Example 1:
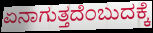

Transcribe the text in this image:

ಏನಾಗುತ್ತದೆಂಬುದಕ್ಕೆ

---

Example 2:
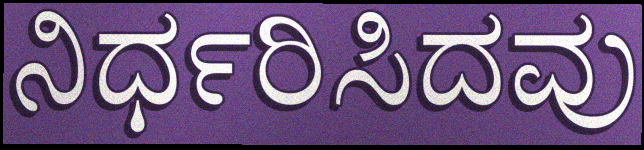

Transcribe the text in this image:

ನಿರ್ಧರಿಸಿದವು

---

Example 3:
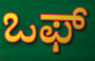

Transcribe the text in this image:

ಒಫ್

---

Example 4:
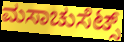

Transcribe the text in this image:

ಮಸಾಚುಸೆಟ್ಸ್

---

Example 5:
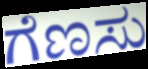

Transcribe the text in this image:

ಗೆಣಸು